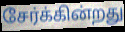
சேர்க்கின்றது